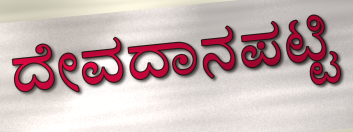
ದೇವದಾನಪಟ್ಟಿ